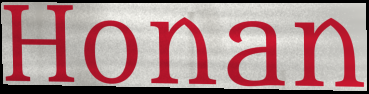
Honan